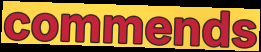
commends